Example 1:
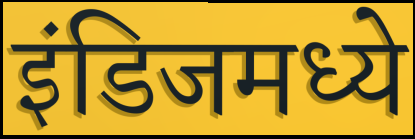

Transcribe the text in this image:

इंडिजमध्ये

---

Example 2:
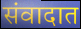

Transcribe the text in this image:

संवादात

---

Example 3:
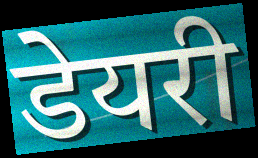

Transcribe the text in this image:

डेयरी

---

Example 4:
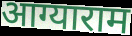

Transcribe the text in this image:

आग्याराम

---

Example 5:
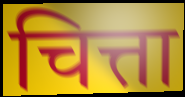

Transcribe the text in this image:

चित्ता